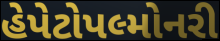
હેપેટોપલ્મોનરી